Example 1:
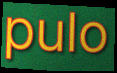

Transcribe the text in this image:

pulo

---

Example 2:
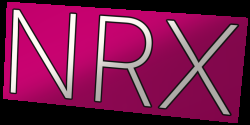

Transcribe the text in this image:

NRX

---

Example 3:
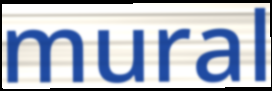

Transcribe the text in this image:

mural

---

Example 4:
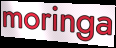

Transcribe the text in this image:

moringa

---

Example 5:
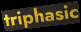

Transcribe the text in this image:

triphasic